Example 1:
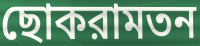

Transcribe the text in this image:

ছোকরামতন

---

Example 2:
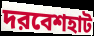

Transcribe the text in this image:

দরবেশহাট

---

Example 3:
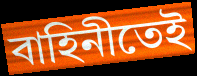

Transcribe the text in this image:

বাহিনীতেই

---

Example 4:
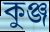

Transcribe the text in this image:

কুঞ্জ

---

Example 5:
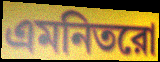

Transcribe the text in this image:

এমনিতরো